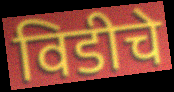
विडीचे